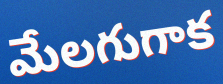
మేలగుగాక